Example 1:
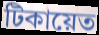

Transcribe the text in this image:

টিকায়েত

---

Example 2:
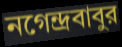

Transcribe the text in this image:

নগেন্দ্রবাবুর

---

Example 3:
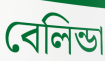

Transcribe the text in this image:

বেলিন্ডা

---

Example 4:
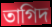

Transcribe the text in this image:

তাগিদ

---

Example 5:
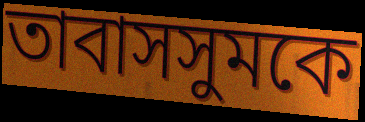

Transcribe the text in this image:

তাবাসসুমকে